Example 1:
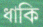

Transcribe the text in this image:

ধাকি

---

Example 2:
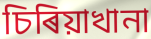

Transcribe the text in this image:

চিৰিয়াখানা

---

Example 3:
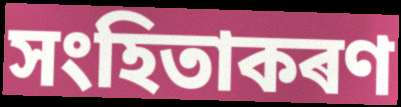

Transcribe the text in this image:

সংহিতাকৰণ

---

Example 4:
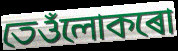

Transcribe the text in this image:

তেওঁলোকৰো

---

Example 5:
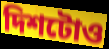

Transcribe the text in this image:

দিশটোও